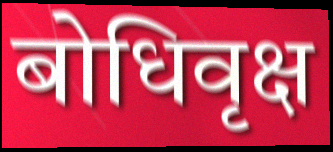
बोधिवृक्ष